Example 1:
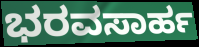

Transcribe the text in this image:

ಭರವಸಾರ್ಹ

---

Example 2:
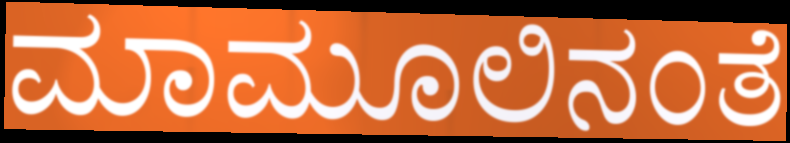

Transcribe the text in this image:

ಮಾಮೂಲಿನಂತೆ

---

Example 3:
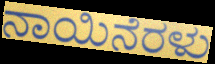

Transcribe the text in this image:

ನಾಯಿನೆರಳು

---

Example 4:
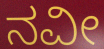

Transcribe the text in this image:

ನವೀ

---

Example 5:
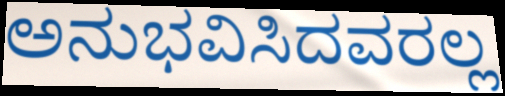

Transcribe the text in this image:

ಅನುಭವಿಸಿದವರಲ್ಲ